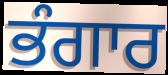
ਭੰਗਾਰ